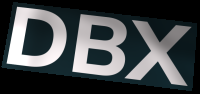
DBX